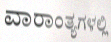
ವಾರಾಂತ್ಯಗಳಲ್ಲಿ